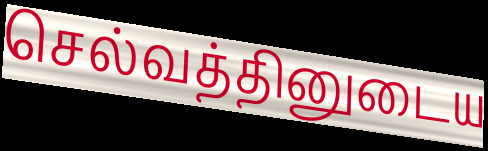
செல்வத்தினுடைய